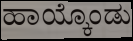
ಹಾಯ್ಕೊಂಡು